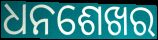
ଧନଶେଖର